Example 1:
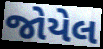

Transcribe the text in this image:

જોયેલ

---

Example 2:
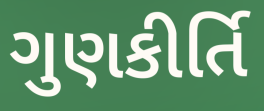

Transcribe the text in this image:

ગુણકીર્તિ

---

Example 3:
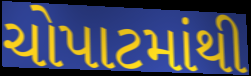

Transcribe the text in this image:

ચોપાટમાંથી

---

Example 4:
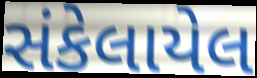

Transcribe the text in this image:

સંકેલાયેલ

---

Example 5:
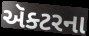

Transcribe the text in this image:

ઍક્ટરના